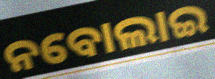
ନବୋଲାଇ